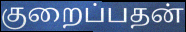
குறைப்பதன்